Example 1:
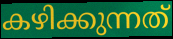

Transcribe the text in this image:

കഴിക്കുന്നത്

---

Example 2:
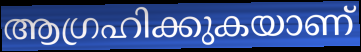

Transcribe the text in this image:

ആഗ്രഹിക്കുകയാണ്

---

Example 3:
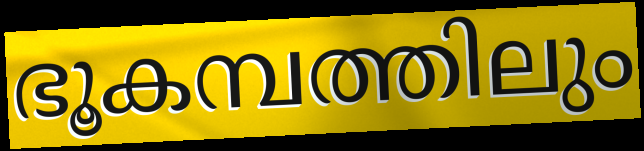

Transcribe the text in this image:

ഭൂകമ്പത്തിലും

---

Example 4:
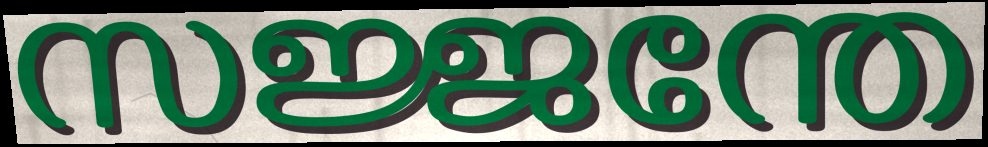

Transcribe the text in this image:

സജ്ജന്തേ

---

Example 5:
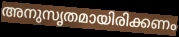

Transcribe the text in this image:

അനുസൃതമായിരിക്കണം